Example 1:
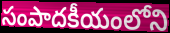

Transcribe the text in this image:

సంపాదకీయంలోని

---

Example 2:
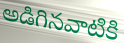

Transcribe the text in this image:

అడిగినవాటికి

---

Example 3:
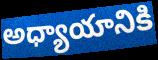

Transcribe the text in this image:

అధ్యాయానికి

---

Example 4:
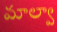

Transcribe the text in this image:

మాల్వా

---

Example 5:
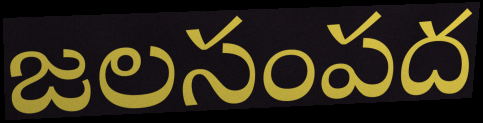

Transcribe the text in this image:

జలసంపద